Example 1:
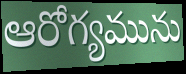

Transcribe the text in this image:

ఆరోగ్యమును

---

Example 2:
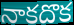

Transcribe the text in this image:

నాకదొక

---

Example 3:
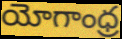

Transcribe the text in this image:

యోగాంధ్ర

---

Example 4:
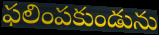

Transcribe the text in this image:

ఫలింపకుండును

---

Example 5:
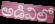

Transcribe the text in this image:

అడివిలో